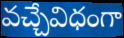
వచ్చేవిధంగా